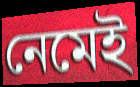
নেমেই